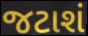
જટાશં